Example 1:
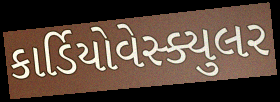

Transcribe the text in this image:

કાર્ડિયોવેસ્ક્યુલર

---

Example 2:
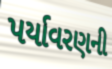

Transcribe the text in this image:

પર્યાવરણની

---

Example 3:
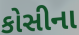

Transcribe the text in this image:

કોસીના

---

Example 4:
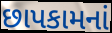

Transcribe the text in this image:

છાપકામનાં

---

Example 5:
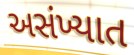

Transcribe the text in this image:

અસંખ્યાત